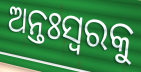
ଅନ୍ତଃସ୍ୱରକୁ